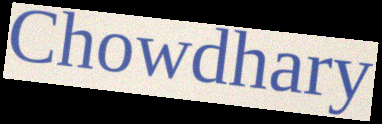
Chowdhary